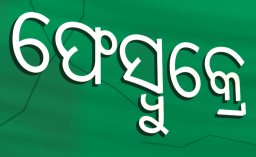
ଫେସ୍ବୁକ୍ରେ